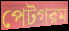
পেটগরম